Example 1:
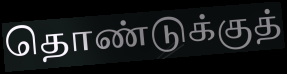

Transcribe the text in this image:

தொண்டுக்குத்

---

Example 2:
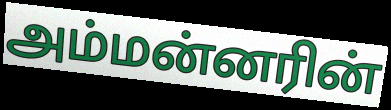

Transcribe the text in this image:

அம்மன்னரின்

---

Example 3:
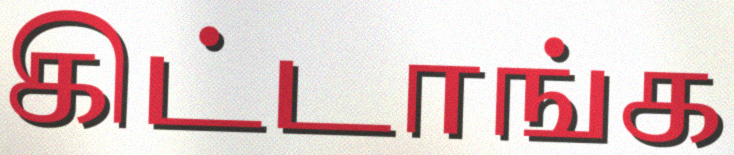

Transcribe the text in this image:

கிட்டாங்க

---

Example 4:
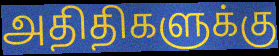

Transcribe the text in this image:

அதிதிகளுக்கு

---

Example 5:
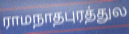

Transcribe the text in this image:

ராமநாதபுரத்துல